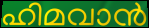
ഹിമവാൻ